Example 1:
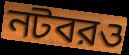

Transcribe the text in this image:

নটবরও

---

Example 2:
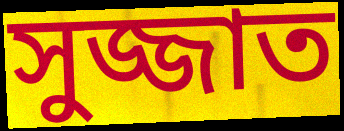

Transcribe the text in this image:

সুজ্জাত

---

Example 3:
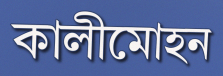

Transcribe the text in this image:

কালীমোহন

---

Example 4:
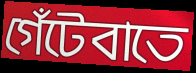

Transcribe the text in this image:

গেঁটেবাতে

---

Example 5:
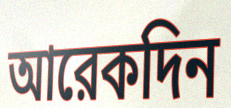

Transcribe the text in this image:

আরেকদিন